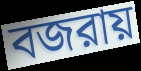
বজরায়